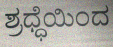
ಶ್ರಧ್ಧೆಯಿಂದ